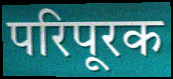
परिपूरक